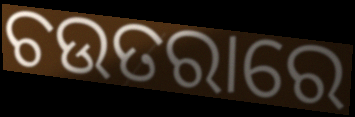
ଚଉତରାରେ